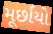
મૂર્છાયો